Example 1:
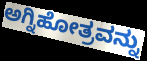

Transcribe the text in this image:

ಅಗ್ನಿಹೋತ್ರವನ್ನು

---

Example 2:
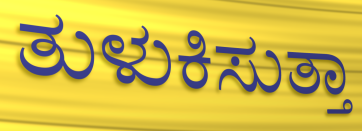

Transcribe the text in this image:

ತುಳುಕಿಸುತ್ತಾ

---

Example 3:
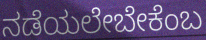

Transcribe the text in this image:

ನಡೆಯಲೇಬೇಕೆಂಬ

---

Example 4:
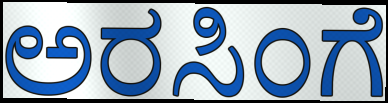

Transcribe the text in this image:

ಅರಸಿಂಗೆ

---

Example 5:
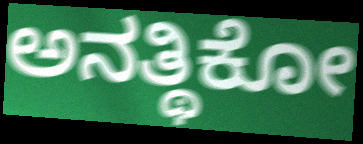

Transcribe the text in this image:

ಅನತ್ಥಿಕೋ